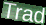
Trad